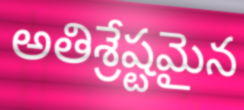
అతిశ్రేష్టమైన